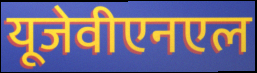
यूजेवीएनएल